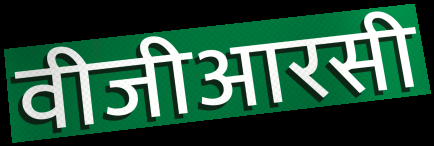
वीजीआरसी